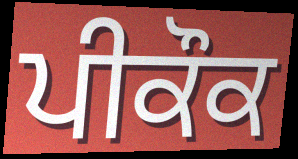
ਪੀਕੌਕ